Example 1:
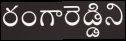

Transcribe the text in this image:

రంగారెడ్డిని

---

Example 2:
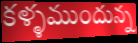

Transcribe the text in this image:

కళ్ళముందున్న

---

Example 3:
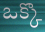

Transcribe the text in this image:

ఒక్కొ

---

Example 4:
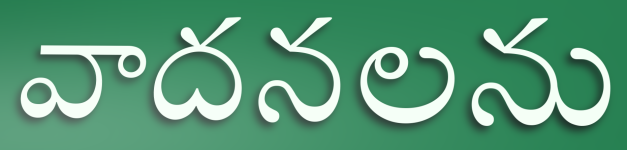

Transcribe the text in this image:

వాదనలను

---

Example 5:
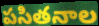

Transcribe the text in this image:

పసితనాల